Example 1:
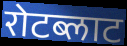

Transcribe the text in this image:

रोटब्लाट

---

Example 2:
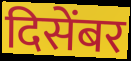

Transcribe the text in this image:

दिसेंबर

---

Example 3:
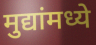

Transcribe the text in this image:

मुद्यांमध्ये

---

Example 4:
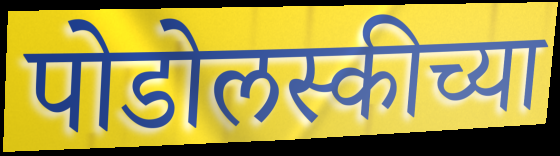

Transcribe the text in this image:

पोडोलस्कीच्या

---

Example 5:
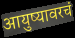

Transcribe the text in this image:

आयुष्यावरचं